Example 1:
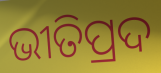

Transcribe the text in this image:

ଭୀତିପ୍ରଦ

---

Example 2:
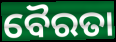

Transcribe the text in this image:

ବୈରତା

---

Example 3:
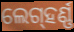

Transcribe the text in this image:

ଲେଗ୍‌ହର୍ଣ୍ଣ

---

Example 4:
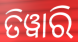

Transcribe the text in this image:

ତିୱାରି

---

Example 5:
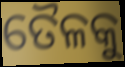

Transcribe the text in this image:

ତୈଳକୁ